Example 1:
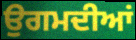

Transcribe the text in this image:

ਉਗਮਦੀਆਂ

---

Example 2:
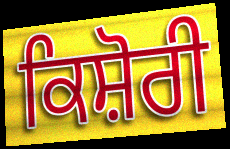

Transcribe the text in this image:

ਕਿਸ਼ੋਰੀ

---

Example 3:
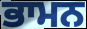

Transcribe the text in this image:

ਭਾਮਨ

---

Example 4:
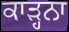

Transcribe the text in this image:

ਕਾੜ੍ਹਨਾ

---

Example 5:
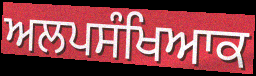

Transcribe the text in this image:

ਅਲਪਸੰਖਿਆਕ